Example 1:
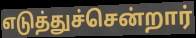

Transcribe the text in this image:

எடுத்துச்சென்றார்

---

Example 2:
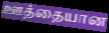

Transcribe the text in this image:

ஊத்தையான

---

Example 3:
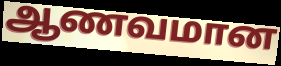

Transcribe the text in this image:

ஆணவமான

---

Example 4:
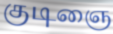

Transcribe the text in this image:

குடிஞை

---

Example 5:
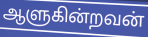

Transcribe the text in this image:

ஆளுகின்றவன்